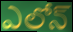
ఎలోన్